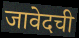
जावेदची